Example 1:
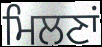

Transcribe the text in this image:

ਮਿਲਣਾਂ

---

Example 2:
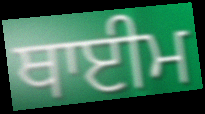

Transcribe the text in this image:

ਥਾਈਮ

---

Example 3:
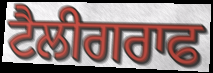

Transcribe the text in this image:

ਟੈਲੀਗਰਾਫ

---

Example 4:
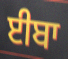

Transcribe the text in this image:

ਈਬਾ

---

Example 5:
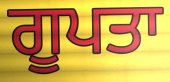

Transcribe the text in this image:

ਗੂਪਤਾ